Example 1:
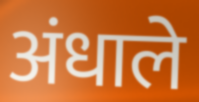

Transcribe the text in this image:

अंधाले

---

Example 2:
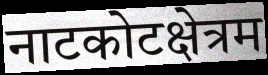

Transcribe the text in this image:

नाटकोटक्षेत्रम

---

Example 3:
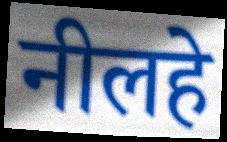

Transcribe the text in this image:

नीलहे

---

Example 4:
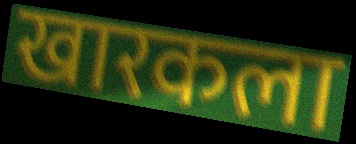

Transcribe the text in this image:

खारकला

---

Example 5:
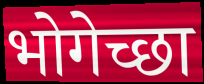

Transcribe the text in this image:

भोगेच्छा